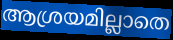
ആശ്രയമില്ലാതെ